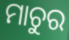
ମାଚୁର